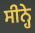
ਸੀਨ੍ਹੇ